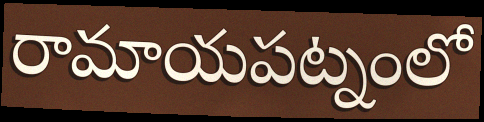
రామాయపట్నంలో